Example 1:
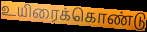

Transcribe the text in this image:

உயிரைக்கொண்டு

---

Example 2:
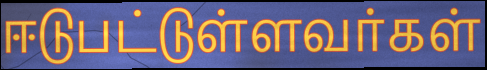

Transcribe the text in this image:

ஈடுபட்டுள்ளவர்கள்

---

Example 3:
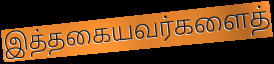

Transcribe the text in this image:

இத்தகையவர்களைத்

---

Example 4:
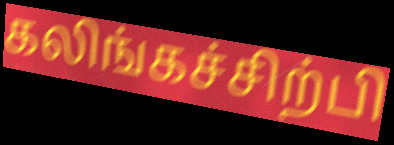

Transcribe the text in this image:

கலிங்கச்சிற்பி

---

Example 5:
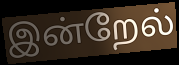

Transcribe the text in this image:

இன்றேல்